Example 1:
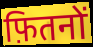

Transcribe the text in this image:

फ़ितनों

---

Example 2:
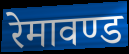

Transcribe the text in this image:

रेमावण्ड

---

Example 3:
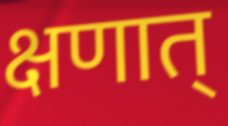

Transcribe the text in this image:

क्षणात्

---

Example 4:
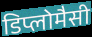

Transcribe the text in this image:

डिप्लोमैसी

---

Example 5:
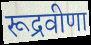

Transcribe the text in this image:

रूद्रवीणा